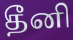
தீனி